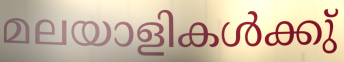
മലയാളികൾക്കു്